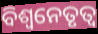
ବିଶ୍ୱନେତୃତ୍ୱ